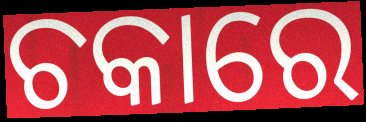
ଚକାରେ